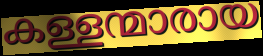
കള്ളന്മാരായ